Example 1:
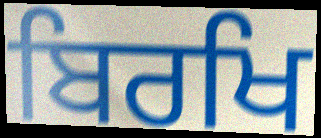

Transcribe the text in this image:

ਬਿਰਖਿ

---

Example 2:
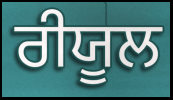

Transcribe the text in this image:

ਰੀਯੂਲ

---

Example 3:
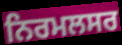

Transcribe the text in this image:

ਨਿਰਮਲਸਰ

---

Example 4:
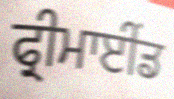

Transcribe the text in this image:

ਫ੍ਰੀਮਾਈਂਡ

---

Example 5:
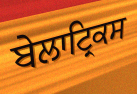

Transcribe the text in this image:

ਬੇਲਾਟ੍ਰਿਕਸ